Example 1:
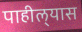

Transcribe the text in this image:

पाहील्यास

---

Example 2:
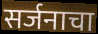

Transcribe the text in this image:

सर्जनाचा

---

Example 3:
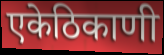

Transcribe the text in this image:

एकेठिकाणी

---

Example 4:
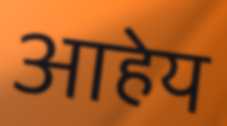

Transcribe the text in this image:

आहेय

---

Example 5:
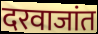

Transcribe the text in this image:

दरवाजांत